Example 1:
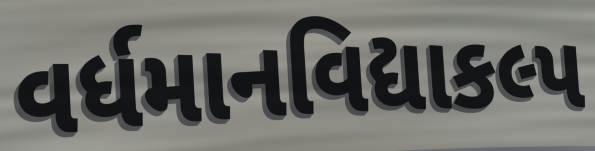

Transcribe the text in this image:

વર્ધમાનવિદ્યાકલ્પ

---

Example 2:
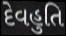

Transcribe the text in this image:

દેવહુતિ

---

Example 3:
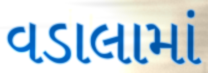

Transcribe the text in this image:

વડાલામાં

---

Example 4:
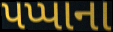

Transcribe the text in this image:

પપ્પાના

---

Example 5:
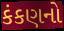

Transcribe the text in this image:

કંકણનો